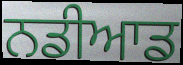
ਨਡੀਆਡ